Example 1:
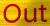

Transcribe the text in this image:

Out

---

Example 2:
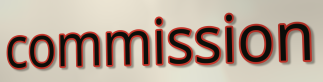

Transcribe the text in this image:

commission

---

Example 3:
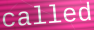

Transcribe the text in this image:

called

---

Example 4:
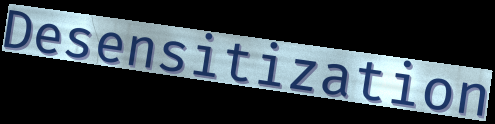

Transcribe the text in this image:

Desensitization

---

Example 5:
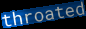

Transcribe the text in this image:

throated